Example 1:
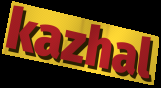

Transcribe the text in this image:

kazhal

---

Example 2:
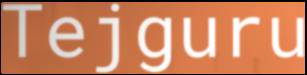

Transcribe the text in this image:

Tejguru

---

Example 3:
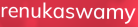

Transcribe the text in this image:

renukaswamy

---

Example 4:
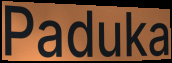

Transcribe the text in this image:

Paduka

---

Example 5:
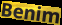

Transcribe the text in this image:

Benim